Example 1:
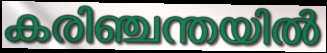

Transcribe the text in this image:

കരിഞ്ചന്തയിൽ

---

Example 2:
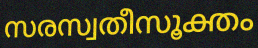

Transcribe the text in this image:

സരസ്വതീസൂക്തം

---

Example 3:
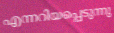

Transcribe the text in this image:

എന്നറിയപ്പെടുന്നു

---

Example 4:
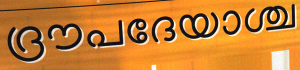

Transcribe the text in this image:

ദ്രൗപദേയാശ്ച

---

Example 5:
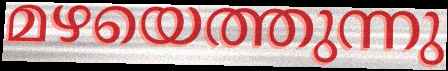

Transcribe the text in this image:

മഴയെത്തുന്നു